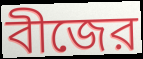
বীজের